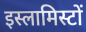
इस्लामिस्टों